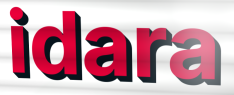
idara